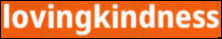
lovingkindness